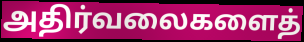
அதிர்வலைகளைத்